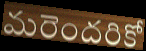
మరెందరికో